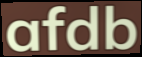
afdb